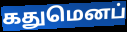
கதுமெனப்